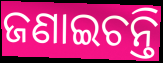
ଜଣାଇଚନ୍ତି